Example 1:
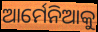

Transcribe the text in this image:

ଆର୍ମେନିଆକୁ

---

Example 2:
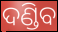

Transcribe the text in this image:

ଦଣ୍ଡିବ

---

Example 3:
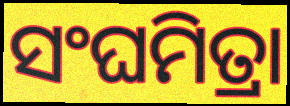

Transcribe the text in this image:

ସଂଘମିତ୍ରା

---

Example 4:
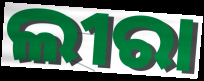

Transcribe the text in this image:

ଲୀରା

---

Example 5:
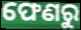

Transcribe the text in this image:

ଫେଣରୁ